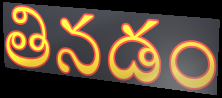
తినడం